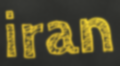
iran